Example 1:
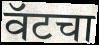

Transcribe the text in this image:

वॅटचा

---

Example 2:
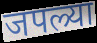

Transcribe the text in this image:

जपल्या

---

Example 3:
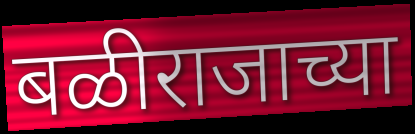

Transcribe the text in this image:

बळीराजाच्या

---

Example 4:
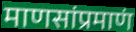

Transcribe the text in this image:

माणसांप्रमाणं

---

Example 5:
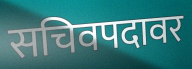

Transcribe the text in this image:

सचिवपदावर